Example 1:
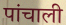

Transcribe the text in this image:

पांचाली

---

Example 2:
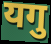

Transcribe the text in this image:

यगु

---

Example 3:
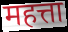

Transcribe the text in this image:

महत्ता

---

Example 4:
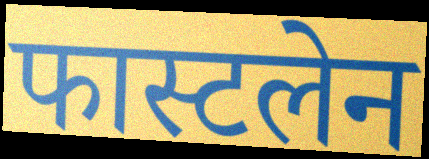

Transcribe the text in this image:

फास्टलेन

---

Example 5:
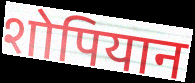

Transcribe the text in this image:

शोपियान